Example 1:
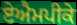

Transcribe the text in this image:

ਏਐਮਪੀਕੇ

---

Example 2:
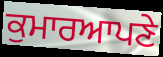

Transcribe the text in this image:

ਕੁਮਾਰਆਪਣੇ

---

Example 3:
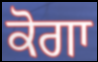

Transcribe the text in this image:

ਕੋਗਾ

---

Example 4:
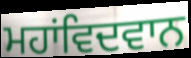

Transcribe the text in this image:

ਮਹਾਂਵਿਦਵਾਨ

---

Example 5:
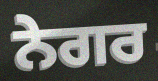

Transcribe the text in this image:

ਨੇਗਰ